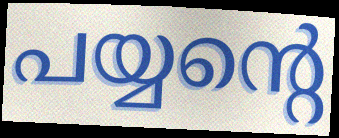
പയ്യന്റെ